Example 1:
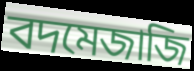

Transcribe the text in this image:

বদমেজাজি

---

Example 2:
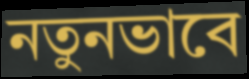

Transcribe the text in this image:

নতুনভাবে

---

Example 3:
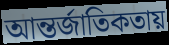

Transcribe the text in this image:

আন্তর্জাতিকতায়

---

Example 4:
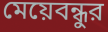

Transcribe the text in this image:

মেয়েবন্ধুর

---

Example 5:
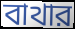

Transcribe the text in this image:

বাথার